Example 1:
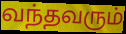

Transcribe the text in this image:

வந்தவரும்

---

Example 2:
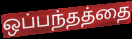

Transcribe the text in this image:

ஒப்பந்தத்தை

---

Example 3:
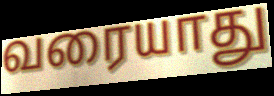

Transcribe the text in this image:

வரையாது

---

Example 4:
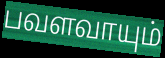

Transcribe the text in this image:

பவளவாயும்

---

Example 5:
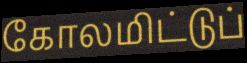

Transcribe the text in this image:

கோலமிட்டுப்